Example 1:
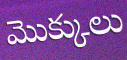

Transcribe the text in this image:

మొక్కులు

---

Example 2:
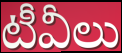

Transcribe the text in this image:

టీవీలు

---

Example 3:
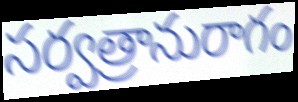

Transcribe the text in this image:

సర్వత్రానురాగం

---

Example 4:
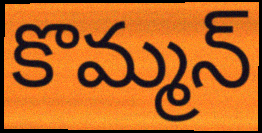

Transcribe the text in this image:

కొమ్మన్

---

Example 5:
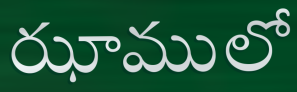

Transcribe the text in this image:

ఝాములో